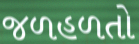
જળહળતો